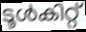
ടൂൾകിറ്റ്